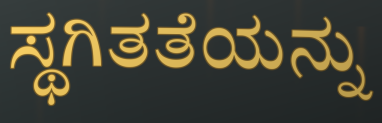
ಸ್ಥಗಿತತೆಯನ್ನು